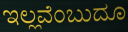
ಇಲ್ಲವೆಂಬುದೂ